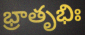
భ్రాతృభిః